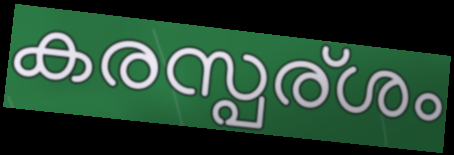
കരസ്പര്ശം